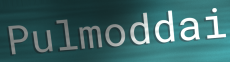
Pulmoddai